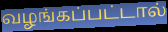
வழங்கப்பட்டால்